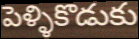
పెళ్ళికొడుకు